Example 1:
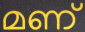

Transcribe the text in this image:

മണ്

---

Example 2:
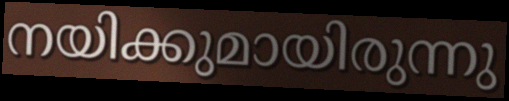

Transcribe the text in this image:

നയിക്കുമായിരുന്നു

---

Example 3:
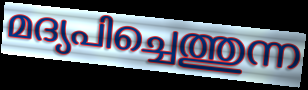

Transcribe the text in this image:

മദ്യപിച്ചെത്തുന്ന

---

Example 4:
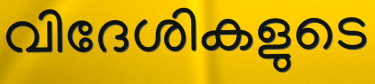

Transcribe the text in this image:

വിദേശികളുടെ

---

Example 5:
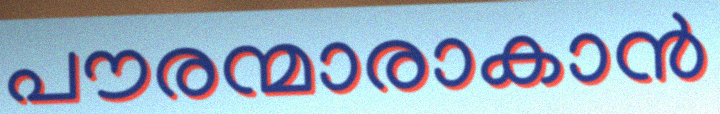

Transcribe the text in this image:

പൗരന്മാരാകാൻ